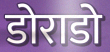
डोराडो